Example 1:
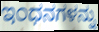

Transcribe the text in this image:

ಇಂಧನಗಳನ್ನು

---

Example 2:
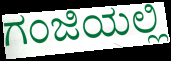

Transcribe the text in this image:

ಗಂಜಿಯಲ್ಲಿ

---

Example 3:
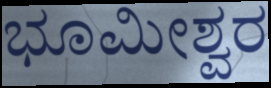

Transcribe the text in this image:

ಭೂಮೀಶ್ವರ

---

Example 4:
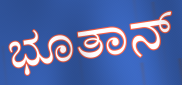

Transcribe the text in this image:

ಭೂತಾನ್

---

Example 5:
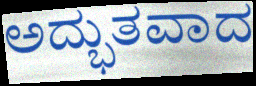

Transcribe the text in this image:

ಅದ್ಭುತವಾದ